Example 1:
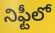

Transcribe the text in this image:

నిఫ్టీలో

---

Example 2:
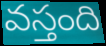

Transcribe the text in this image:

వస్తంది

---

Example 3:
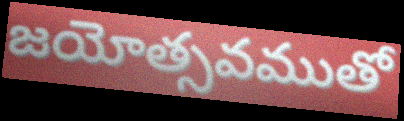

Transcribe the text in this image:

జయోత్సవముతో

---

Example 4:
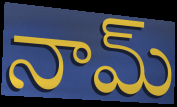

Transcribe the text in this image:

నామ్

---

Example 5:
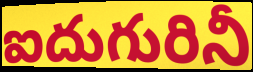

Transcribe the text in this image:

ఐదుగురినీ